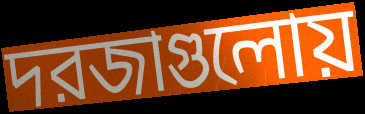
দরজাগুলোয়